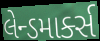
લેન્ડમાર્ક્સ